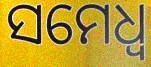
ସମେଧ୍ୱ